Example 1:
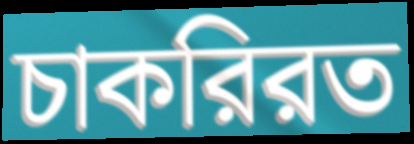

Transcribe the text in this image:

চাকরিরত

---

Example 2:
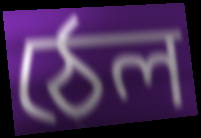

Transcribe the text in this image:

ঠেল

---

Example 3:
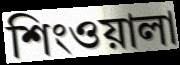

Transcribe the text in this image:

শিংওয়ালা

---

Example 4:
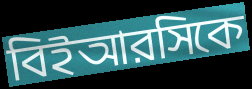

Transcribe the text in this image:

বিইআরসিকে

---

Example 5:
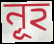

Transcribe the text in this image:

নূহ